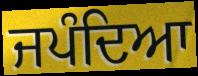
ਜਪੰਦਿਆ